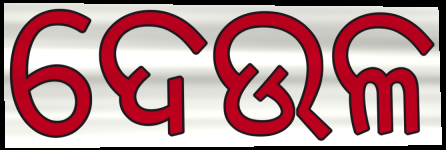
ଦେଉଳ